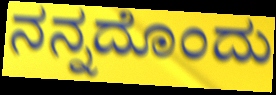
ನನ್ನದೊಂದು